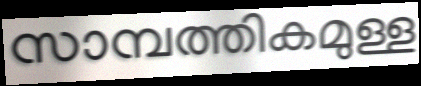
സാമ്പത്തികമുള്ള